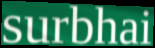
surbhai